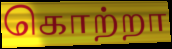
கொற்றா